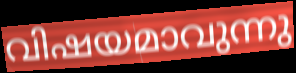
വിഷയമാവുന്നു